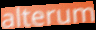
alterum